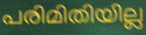
പരിമിതിയില്ല